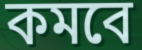
কমবে